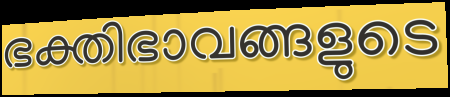
ഭക്തിഭാവങ്ങളുടെ